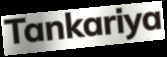
Tankariya